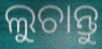
ଲୁଚାନ୍ତୁ